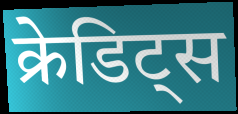
क्रेडिट्स